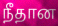
நீதான